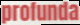
profunda